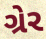
ગ્રેર